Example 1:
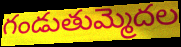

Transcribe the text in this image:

గండుతుమ్మెదల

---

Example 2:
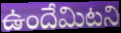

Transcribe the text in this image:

ఉందేమిటని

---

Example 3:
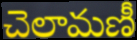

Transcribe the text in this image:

చెలామణీ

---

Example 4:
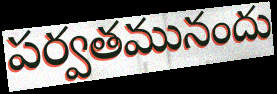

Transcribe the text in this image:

పర్వతమునందు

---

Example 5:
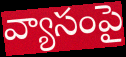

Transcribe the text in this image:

వ్యాసంపై